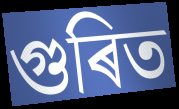
গুৰিত